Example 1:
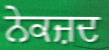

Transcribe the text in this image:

ਨੇਕਜ਼ਦ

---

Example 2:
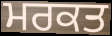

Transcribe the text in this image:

ਮਰਕਤ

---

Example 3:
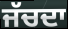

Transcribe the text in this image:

ਜੱਚਦਾ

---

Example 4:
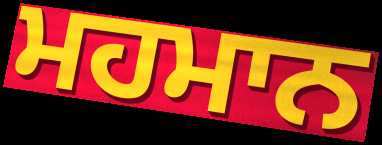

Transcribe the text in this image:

ਮਹਮਾਨ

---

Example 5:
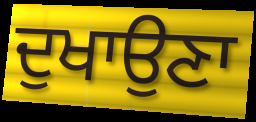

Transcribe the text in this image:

ਦੁਖਾਉਣਾ